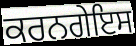
ਕਰਨਗੇਇਸ